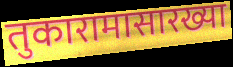
तुकारामासारख्या